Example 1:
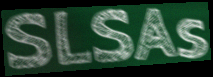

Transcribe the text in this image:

SLSAs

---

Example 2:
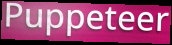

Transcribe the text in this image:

Puppeteer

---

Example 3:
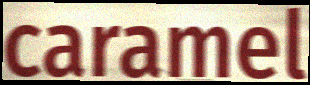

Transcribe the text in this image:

caramel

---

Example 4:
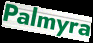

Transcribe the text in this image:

Palmyra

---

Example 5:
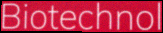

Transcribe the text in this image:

Biotechnol